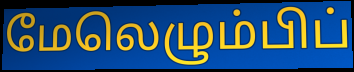
மேலெழும்பிப்